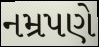
નમ્રપણે